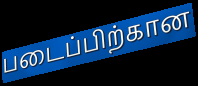
படைப்பிற்கான